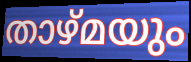
താഴ്മയും